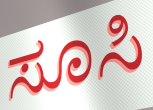
ಸೂಸಿ